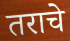
तराचे